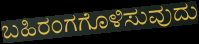
ಬಹಿರಂಗಗೊಳಿಸುವುದು